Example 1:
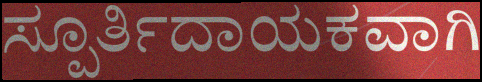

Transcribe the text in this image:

ಸ್ಪೂರ್ತಿದಾಯಕವಾಗಿ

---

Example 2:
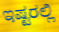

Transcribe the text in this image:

ಇಷ್ಟರಲ್ಲಿ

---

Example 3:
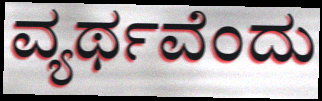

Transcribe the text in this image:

ವ್ಯರ್ಥವೆಂದು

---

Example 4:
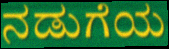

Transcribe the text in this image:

ನಡುಗೆಯ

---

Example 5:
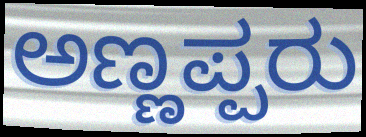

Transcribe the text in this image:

ಅಣ್ಣಪ್ಪರು